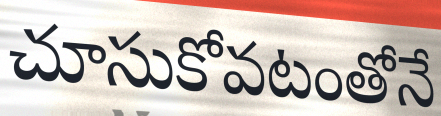
చూసుకోవటంతోనే